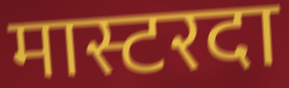
मास्टरदा